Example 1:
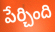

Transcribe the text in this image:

పేర్చింది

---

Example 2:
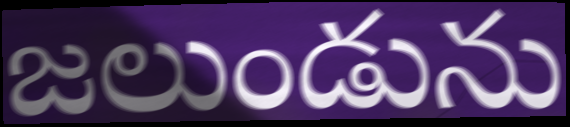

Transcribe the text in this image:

జలుండును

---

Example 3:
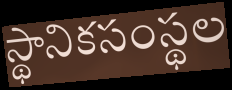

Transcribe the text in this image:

స్థానికసంస్థల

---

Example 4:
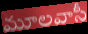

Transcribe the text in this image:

మూలవాసీ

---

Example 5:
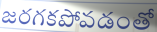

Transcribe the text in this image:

జరగకపోవడంతో